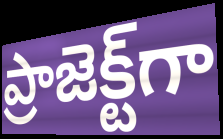
ప్రాజెక్ట్‌గా